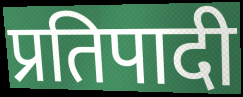
प्रतिपादी